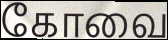
கோவை